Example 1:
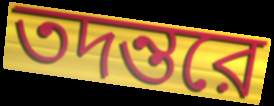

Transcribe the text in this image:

তদন্তরে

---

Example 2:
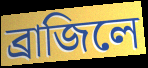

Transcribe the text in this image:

ব্রাজিলে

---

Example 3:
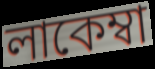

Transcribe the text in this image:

লাকেম্বা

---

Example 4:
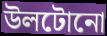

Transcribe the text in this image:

উলটোনো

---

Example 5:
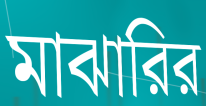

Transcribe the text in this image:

মাঝারির